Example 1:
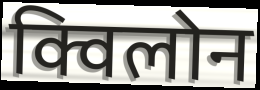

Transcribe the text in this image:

क्विलोन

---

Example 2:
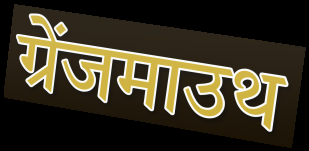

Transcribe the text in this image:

ग्रेंजमाउथ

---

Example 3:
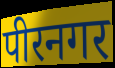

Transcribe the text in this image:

पीरनगर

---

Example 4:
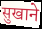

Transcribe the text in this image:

सुखाने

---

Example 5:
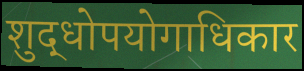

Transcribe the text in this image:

शुद्धोपयोगाधिकार